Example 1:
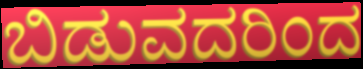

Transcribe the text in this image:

ಬಿಡುವದರಿಂದ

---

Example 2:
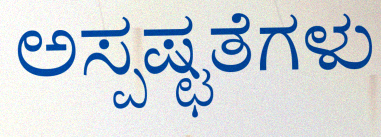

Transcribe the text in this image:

ಅಸ್ಪಷ್ಟತೆಗಳು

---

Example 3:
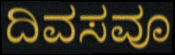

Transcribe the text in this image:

ದಿವಸವೂ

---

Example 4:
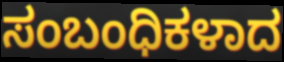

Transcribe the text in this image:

ಸಂಬಂಧಿಕಳಾದ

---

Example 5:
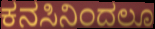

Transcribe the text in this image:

ಕನಸಿನಿಂದಲೂ